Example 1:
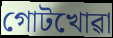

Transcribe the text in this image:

গোটখোৱা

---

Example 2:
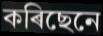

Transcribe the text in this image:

কৰিছেনে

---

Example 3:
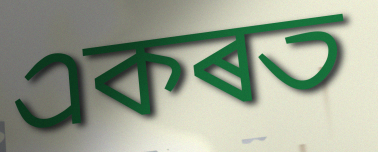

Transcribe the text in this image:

একৰত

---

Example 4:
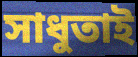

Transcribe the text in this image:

সাধুতাই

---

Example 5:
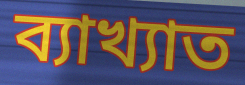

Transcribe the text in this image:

ব্যাখ্যাত